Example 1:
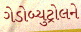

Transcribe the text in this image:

ગેડોબ્યુટ્રોલને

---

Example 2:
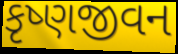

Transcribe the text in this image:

કૃષ્ણજીવન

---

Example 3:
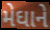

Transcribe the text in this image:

મેઘાને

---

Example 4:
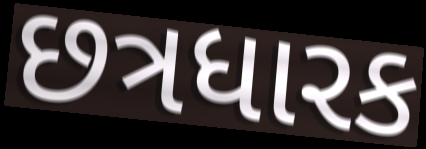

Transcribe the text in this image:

છત્રધારક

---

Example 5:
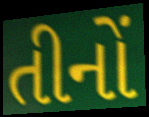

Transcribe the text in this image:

તીનોં